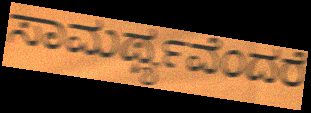
ಸಾಮರ್ಥ್ಯವೆಂದರೆ